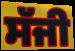
ਸੱਜੀ